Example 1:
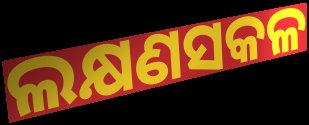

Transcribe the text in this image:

ଲକ୍ଷଣସକଳ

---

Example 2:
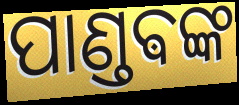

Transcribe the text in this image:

ପାଣ୍ଡଵଙ୍କ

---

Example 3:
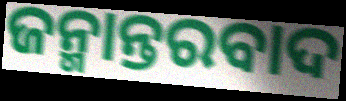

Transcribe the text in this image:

ଜନ୍ମାନ୍ତରବାଦ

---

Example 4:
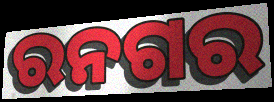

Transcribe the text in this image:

ରନଗର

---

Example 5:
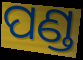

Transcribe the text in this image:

ପଣ୍ଡ